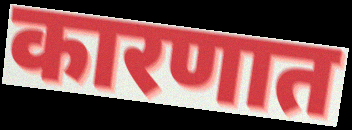
कारणात